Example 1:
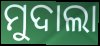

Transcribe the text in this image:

ମୁଦାଲା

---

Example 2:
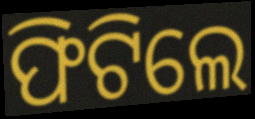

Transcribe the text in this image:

ଫିଟିଲେ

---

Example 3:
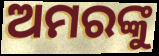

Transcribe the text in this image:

ଅମରଙ୍କୁ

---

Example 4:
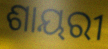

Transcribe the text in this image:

ଶାୟରୀ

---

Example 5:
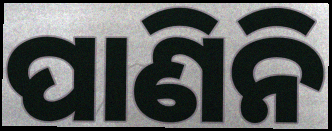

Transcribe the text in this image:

ପାଣିନି